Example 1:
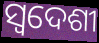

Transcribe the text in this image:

ସ୍ୱଦେଶୀ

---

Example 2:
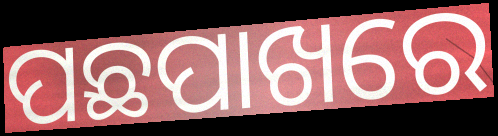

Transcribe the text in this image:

ପଛପାଖରେ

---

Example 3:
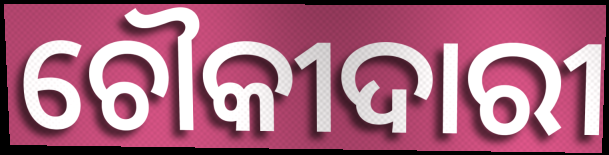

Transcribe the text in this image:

ଚୌକୀଦାରୀ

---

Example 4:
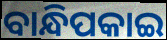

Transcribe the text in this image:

ବାନ୍ଧିପକାଇ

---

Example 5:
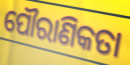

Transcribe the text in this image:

ପୌରାଣିକତା